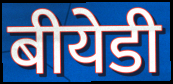
बीयेडी